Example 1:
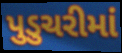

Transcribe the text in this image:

પુડુચરીમાં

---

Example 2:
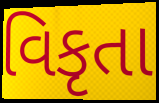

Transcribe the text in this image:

વિકૃતા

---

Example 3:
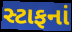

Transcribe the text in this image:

સ્ટાફનાં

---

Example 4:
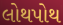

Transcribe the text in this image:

લોથપોથ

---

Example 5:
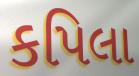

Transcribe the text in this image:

કપિલા